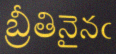
బ్రీతినైనఁ